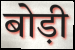
बोड़ी